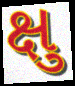
ક્ષુ